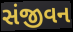
સંજીવન